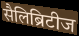
सैलिब्रिटीज